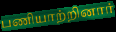
பணியாற்றினார்